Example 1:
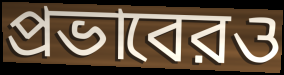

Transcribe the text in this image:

প্রভাবেরও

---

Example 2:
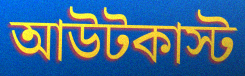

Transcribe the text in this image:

আউটকাস্ট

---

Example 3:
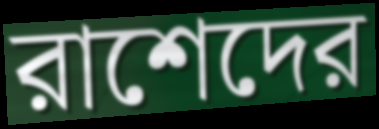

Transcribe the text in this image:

রাশেদের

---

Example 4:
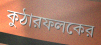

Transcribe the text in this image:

কুঠারফলকের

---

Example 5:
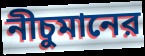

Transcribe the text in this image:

নীচুমানের